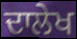
ਦਾਲੇਖ